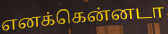
எனக்கென்னடா